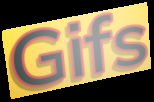
Gifs